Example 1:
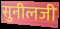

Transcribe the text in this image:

सुनीलजी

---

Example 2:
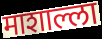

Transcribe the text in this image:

माशाल्ला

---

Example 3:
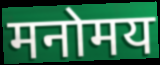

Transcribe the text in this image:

मनोमय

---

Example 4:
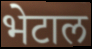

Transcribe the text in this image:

भेटाल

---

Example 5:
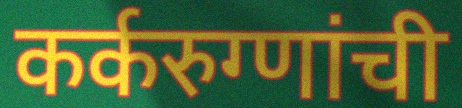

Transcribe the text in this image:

कर्करुग्णांची